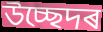
উচ্ছেদৰ